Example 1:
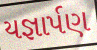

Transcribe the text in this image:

યજ્ઞાર્પણ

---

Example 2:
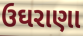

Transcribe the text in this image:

ઉઘરાણા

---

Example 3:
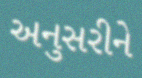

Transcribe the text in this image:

અનુસરીને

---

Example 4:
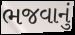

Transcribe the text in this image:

ભજવાનું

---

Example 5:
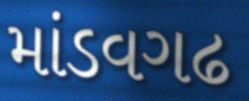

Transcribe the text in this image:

માંડવગઢ